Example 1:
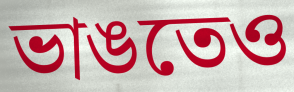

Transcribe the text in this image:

ভাঙতেও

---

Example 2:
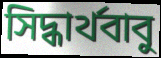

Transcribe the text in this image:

সিদ্ধার্থবাবু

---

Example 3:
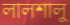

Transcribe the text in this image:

লালশালু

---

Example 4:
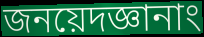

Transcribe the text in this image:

জনয়েদজ্ঞানাং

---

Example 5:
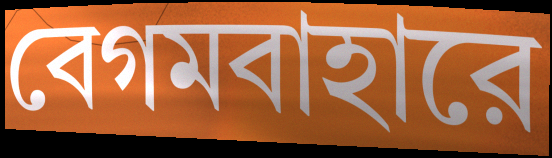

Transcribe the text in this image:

বেগমবাহারে